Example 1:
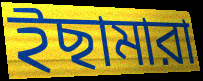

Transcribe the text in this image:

ইছামারা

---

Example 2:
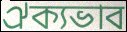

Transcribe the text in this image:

ঐক্যভাব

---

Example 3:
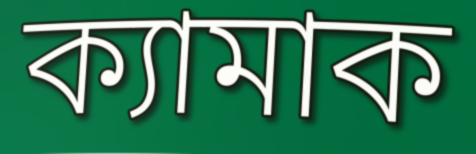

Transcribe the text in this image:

ক্যামাক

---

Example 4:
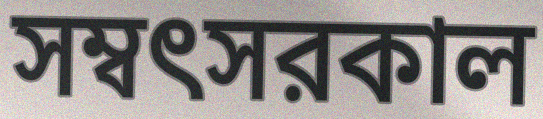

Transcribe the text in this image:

সম্বৎসরকাল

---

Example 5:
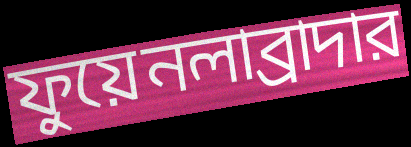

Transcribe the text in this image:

ফুয়েনলাব্রাদার